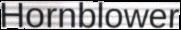
Hornblower